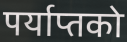
पर्याप्तको